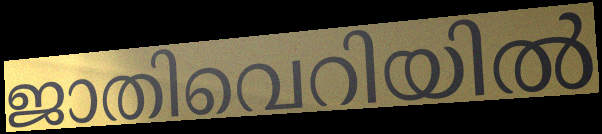
ജാതിവെറിയിൽ